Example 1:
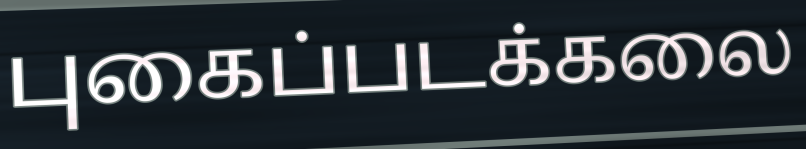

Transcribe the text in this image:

புகைப்படக்கலை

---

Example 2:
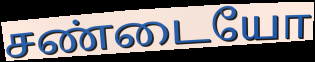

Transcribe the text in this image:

சண்டையோ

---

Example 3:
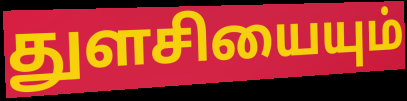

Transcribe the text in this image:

துளசியையும்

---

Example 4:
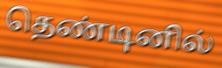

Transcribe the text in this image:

தெண்டினில்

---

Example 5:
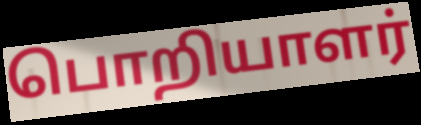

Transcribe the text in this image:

பொறியாளர்